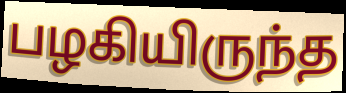
பழகியிருந்த